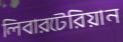
লিবারটেরিয়ান